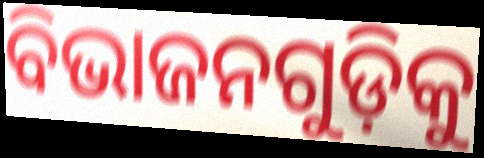
ବିଭାଜନଗୁଡ଼ିକୁ